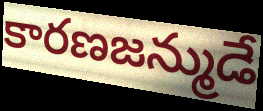
కారణజన్ముడే